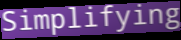
Simplifying